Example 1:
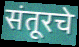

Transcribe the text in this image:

संतूरचे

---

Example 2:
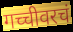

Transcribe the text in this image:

गच्चीवरचं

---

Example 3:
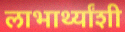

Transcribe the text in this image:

लाभार्थ्यांशी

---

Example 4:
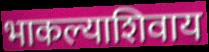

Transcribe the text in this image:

भाकल्याशिवाय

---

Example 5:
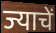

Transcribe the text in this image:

ज्याचें